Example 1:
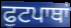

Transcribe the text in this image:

ਫੁਟਪਾਥਾਂ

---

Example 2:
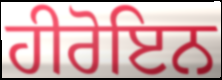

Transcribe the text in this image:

ਹੀਰੋਇਨ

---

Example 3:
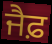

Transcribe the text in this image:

ਜੈਫ਼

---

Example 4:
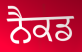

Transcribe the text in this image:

ਨੈਕਡ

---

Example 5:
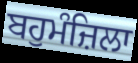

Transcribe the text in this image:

ਬਹੁਮੰਜ਼ਿਲਾ